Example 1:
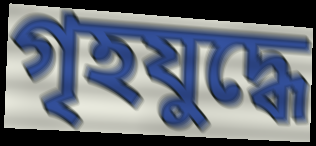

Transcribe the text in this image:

গৃহযুদ্ধে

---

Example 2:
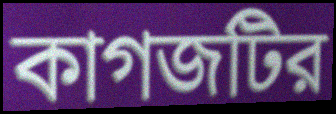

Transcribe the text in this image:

কাগজটির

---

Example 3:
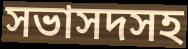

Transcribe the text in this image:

সভাসদসহ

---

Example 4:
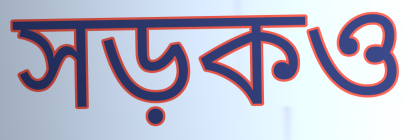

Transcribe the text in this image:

সড়কও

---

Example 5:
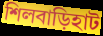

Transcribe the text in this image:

শিলবাড়িহাট